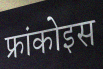
फ्रांकोइस